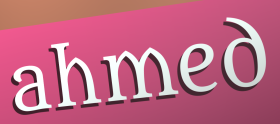
ahmed